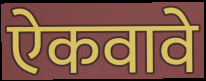
ऐकवावे